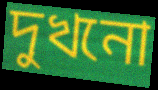
দুখনো